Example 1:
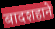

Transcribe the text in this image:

बादशहाने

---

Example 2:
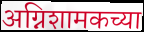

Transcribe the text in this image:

अग्निशामकच्या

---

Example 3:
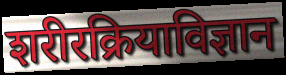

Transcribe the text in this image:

शरीरक्रियाविज्ञान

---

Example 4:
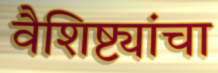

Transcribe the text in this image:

वैशिष्ट्यांचा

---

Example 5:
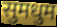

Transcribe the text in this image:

सुमधुम